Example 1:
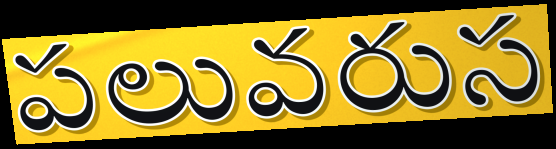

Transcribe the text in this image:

పలువరుస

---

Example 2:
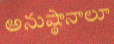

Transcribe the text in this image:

అనుష్ఠానాలూ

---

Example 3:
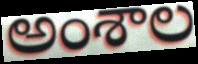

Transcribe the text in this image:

అంశాల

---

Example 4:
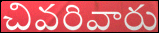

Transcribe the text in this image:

చివరివారు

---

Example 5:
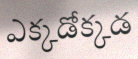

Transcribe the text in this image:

ఎక్కడోక్కడ